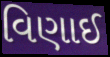
વિણાઈ